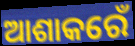
ଆଶାକରେଁ